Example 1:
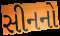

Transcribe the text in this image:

સીનનો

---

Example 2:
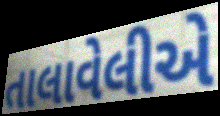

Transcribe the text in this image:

તાલાવેલીએ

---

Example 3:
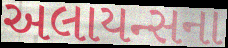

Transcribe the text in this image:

અલાયન્સના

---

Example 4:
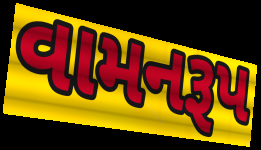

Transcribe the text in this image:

વામનરૂપ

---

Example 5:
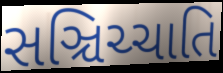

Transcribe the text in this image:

સઞ્ચિચ્ચાતિ